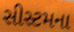
સીસ્ટમના